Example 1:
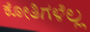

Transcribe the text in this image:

ಕೋತಿಗಳೆಲ್ಲ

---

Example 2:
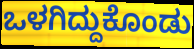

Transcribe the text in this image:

ಒಳಗಿದ್ದುಕೊಂಡು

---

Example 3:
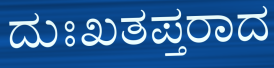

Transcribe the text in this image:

ದುಃಖತಪ್ತರಾದ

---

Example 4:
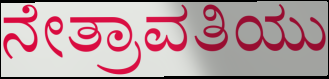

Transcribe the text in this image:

ನೇತ್ರಾವತಿಯು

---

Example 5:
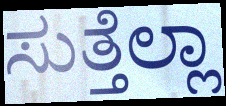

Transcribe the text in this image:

ಸುತ್ತೆಲ್ಲಾ